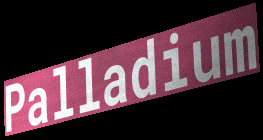
Palladium